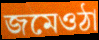
জমেওঠা